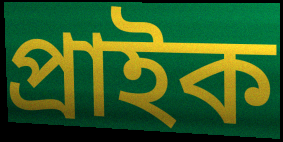
প্রাইক